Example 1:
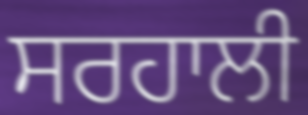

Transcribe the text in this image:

ਸਰਹਾਲੀ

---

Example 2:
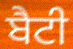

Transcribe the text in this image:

ਬੈਟੀ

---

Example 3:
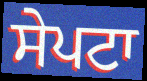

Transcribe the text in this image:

ਸੇਪਟਾ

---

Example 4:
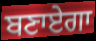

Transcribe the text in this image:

ਬਣਾਏਗਾ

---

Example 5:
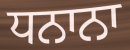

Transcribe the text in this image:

ਧਨਾਨਾ